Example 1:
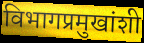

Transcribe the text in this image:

विभागप्रमुखांशी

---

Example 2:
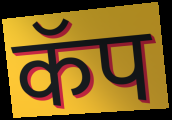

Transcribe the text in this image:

कॅप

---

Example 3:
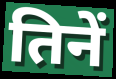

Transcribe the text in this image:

तिनें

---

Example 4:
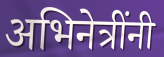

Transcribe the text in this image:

अभिनेत्रींनी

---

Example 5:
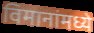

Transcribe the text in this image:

विमानांमध्ये